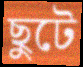
ছুটে